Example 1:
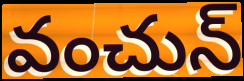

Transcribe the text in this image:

వంచున్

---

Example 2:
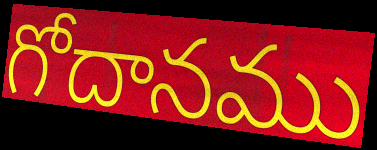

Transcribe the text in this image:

గోదానము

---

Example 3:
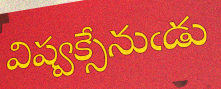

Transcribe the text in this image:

విష్వక్సేనుఁడు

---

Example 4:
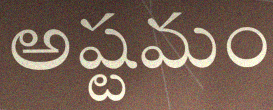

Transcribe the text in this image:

అష్టమం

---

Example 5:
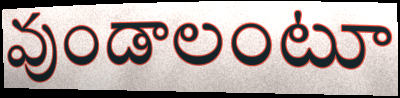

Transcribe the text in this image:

వుండాలంటూ